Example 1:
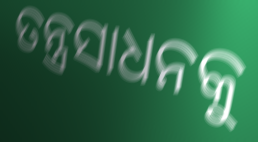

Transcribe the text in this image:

ତନ୍ତ୍ରସାଧନକୁ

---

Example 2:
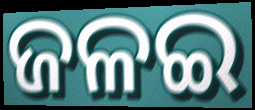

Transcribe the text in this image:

ଜଳଇ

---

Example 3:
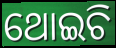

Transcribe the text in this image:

ଥୋଇଚି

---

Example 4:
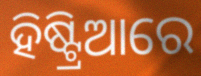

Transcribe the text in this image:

ହିଷ୍ଟ୍ରିଆରେ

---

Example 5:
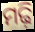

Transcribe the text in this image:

ମଢ଼ି